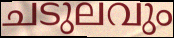
ചടുലവും